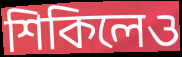
শিকিলেও